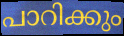
പാറിക്കും